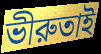
ভীরুতাই